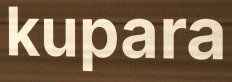
kupara